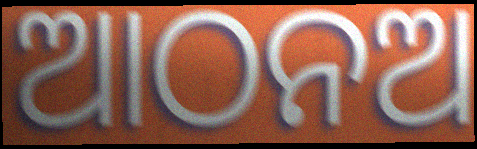
ଆଠନଅ